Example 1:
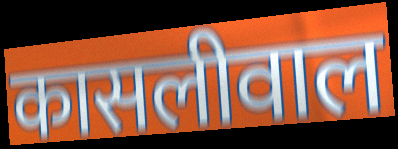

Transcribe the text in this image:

कासलीवाल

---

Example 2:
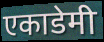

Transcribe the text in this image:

एकाडेमी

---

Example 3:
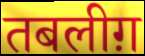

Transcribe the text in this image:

तबलीग़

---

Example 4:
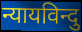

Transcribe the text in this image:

न्यायविन्दु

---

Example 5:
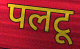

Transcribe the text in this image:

पलटू